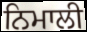
ਨਿਮਾਲੀ